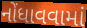
નોંધાવવામાં